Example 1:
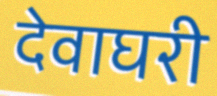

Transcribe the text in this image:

देवाघरी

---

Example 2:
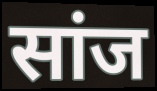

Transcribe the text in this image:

सांज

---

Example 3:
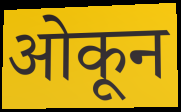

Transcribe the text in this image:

ओकून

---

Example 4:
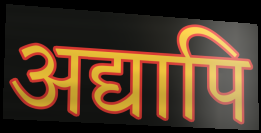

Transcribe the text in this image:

अद्यापि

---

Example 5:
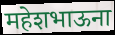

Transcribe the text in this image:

महेशभाऊना